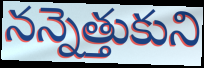
నన్నెత్తుకుని